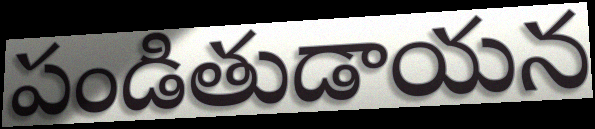
పండితుడాయన